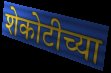
शेकोटीच्या